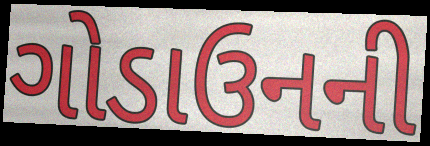
ગોડાઉનની